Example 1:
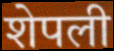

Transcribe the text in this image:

शेपली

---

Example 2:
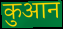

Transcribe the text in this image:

कुआन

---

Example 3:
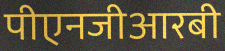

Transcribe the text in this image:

पीएनजीआरबी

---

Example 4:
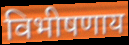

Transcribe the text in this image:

विभीषणाय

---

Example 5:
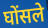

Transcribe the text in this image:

घोंसले